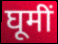
घूमीं